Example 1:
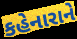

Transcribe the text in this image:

કહેનારાને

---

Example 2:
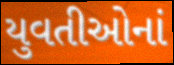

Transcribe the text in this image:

યુવતીઓનાં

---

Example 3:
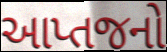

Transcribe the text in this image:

આપ્તજનો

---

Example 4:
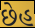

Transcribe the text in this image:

છેહ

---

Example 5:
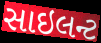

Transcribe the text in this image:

સાઇલન્ટ